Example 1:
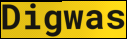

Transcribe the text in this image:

Digwas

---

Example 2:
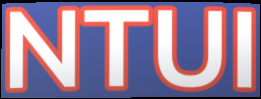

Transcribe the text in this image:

NTUI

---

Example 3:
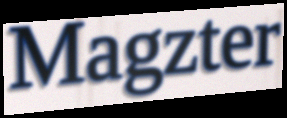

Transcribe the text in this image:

Magzter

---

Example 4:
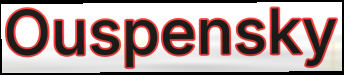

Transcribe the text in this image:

Ouspensky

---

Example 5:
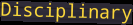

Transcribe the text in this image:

Disciplinary